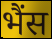
भैंस